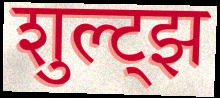
शुल्ट्झ